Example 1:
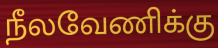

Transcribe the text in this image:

நீலவேணிக்கு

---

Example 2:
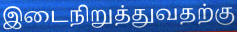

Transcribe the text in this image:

இடைநிறுத்துவதற்கு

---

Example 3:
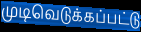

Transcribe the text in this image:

முடிவெடுக்கப்பட்டு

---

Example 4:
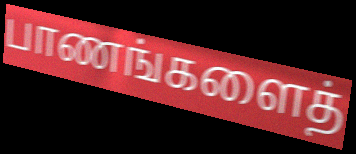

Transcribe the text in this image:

பாணங்களைத்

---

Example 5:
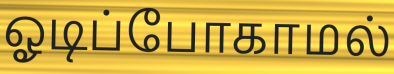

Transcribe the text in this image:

ஓடிப்போகாமல்